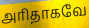
அரிதாகவே